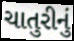
ચાતુરીનું